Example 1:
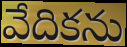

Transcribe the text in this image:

వేదికను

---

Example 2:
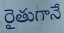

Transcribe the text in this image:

రైతుగానే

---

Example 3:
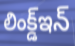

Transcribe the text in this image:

లింక్డ్ఇన్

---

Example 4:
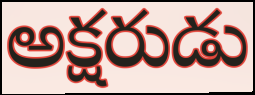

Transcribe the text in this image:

అక్షరుడు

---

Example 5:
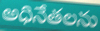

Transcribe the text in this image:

అధినేతలను